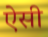
ऐसी